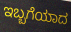
ಇಬ್ಬಗೆಯಾದ